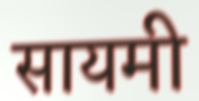
सायमी